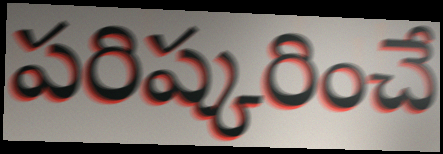
పరిష్కరించే